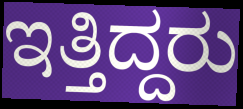
ಇತ್ತಿದ್ದರು